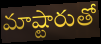
మాష్టారుతో